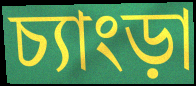
চ্যাংড়া